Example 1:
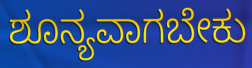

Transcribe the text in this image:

ಶೂನ್ಯವಾಗಬೇಕು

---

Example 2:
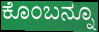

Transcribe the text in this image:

ಕೊಂಬನ್ನೂ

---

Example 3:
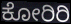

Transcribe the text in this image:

ಕೋರಿರಿ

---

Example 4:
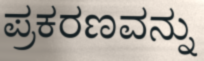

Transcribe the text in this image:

ಪ್ರಕರಣವನ್ನು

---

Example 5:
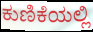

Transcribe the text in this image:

ಕುಣಿಕೆಯಲ್ಲಿ